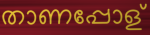
താണപ്പോള്